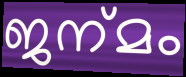
ജന്‌മം